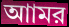
আামর